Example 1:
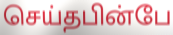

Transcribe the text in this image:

செய்தபின்பே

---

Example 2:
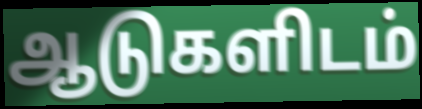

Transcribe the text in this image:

ஆடுகளிடம்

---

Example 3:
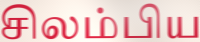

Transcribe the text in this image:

சிலம்பிய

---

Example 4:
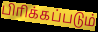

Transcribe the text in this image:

பிரிக்கப்படும்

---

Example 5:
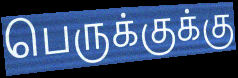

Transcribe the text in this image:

பெருக்குக்கு